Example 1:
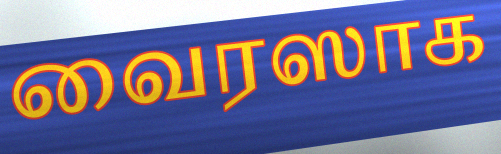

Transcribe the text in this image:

வைரஸாக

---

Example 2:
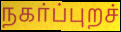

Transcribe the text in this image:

நகர்ப்புறச்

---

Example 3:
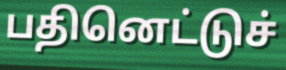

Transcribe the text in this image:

பதினெட்டுச்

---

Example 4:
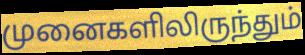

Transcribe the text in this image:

முனைகளிலிருந்தும்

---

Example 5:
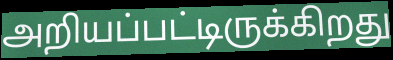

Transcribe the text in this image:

அறியப்பட்டிருக்கிறது